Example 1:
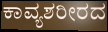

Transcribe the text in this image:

ಕಾವ್ಯಶರೀರದ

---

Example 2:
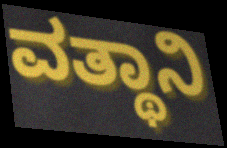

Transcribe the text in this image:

ವತ್ಥಾನಿ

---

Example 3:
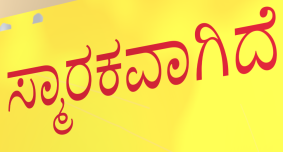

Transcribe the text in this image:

ಸ್ಮಾರಕವಾಗಿದೆ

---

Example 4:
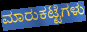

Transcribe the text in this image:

ಮಾರುಕಟ್ಟೆಗಳು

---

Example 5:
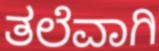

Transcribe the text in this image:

ತಲೆವಾಗಿ